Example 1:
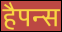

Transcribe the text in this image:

हैपन्स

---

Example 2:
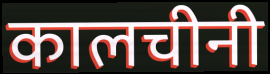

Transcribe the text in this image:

कालचीनी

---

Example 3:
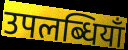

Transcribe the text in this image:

उपलब्धियाँ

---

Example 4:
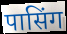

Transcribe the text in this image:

पासिंग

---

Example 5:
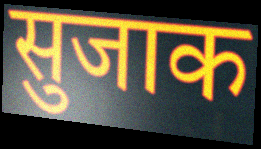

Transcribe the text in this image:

सुजाक